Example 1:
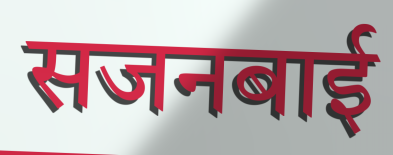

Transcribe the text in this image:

सजनबाई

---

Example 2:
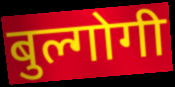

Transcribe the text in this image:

बुल्गोगी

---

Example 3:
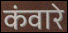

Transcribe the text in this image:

कंवारे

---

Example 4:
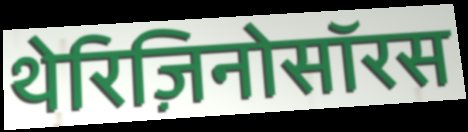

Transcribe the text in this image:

थेरिज़िनोसॉरस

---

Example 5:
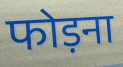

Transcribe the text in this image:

फोड़ना